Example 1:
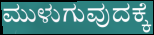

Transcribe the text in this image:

ಮುಳುಗುವುದಕ್ಕೆ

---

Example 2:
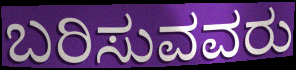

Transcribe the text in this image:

ಬರಿಸುವವರು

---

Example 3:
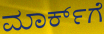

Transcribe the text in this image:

ಮಾರ್ಕ್‌ಗೆ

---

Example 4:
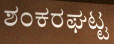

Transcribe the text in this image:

ಶಂಕರಘಟ್ಟ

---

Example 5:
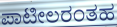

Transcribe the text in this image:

ಪಾಟೀಲರಂತಹ